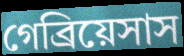
গেব্রিয়েসাস